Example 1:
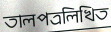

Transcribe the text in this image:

তালপত্রলিখিত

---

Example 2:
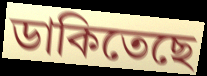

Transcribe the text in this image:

ডাকিতেছে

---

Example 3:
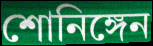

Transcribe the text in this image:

শোনিঙ্গেন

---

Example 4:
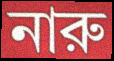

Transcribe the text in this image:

নারু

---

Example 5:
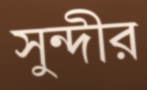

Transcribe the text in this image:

সুন্দীর